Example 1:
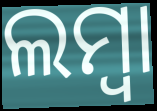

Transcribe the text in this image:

ଲମ୍ୱା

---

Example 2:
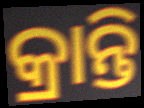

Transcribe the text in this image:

କ୍ରାନ୍ତି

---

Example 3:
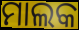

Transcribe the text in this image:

ମାଲକ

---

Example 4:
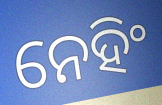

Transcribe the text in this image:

ନେହିଂ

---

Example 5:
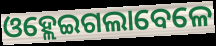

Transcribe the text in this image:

ଓହ୍ଲେଇଗଲାବେଳେ